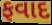
ફવાદ